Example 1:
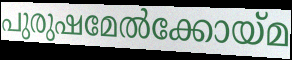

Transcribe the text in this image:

പുരുഷമേൽക്കോയ്മ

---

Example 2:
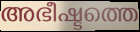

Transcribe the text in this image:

അഭീഷ്ടത്തെ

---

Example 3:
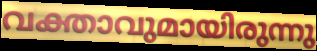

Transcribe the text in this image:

വക്താവുമായിരുന്നു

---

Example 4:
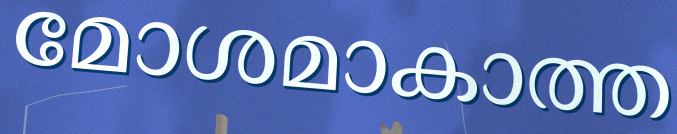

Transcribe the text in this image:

മോശമാകാത്ത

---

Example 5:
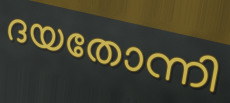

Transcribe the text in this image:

ദയതോന്നി